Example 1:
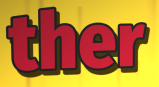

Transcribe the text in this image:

ther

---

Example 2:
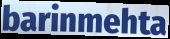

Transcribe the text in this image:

barinmehta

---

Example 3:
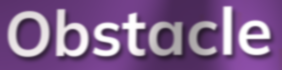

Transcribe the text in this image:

Obstacle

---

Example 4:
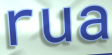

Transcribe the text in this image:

rua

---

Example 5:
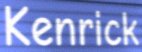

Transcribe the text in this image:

Kenrick